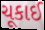
ચૂકાઈ